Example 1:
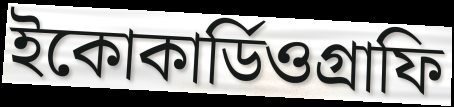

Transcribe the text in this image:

ইকোকার্ডিওগ্রাফি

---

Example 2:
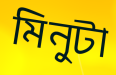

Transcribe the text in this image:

মিনুটা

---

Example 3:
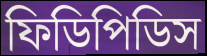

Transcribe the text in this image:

ফিডিপিডিস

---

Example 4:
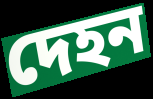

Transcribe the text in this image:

দেহন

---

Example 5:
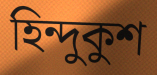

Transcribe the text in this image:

হিন্দুকুশ